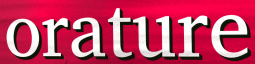
orature